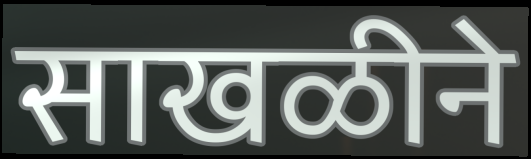
साखळीने